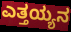
ಎತ್ತಯ್ಯನ